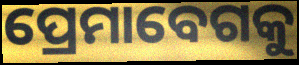
ପ୍ରେମାବେଗକୁ